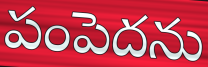
పంపెదను